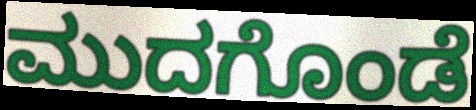
ಮುದಗೊಂಡೆ